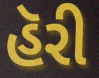
હૅરી